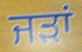
ਜੜਾਂ